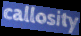
callosity